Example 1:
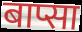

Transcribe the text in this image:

बाप्सा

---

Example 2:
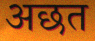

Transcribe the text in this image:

अछत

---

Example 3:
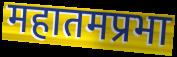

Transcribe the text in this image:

महातमप्रभा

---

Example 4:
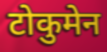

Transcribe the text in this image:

टोकुमेन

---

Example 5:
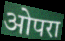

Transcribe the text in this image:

ओपरा